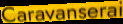
Caravanserai